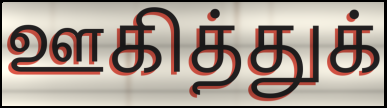
ஊகித்துக்